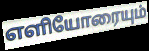
எளியோரையும்